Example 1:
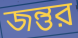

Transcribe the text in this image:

জন্তুর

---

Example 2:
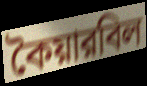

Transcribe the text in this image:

কৈয়ারবিল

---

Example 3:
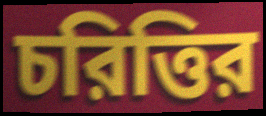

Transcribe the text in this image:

চরিত্তির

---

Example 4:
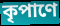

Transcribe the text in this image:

কৃপাণে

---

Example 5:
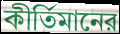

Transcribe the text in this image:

কীর্তিমানের